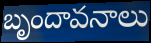
బృందావనాలు